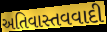
અતિવાસ્તવવાદી